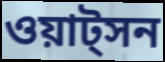
ওয়াট্সন